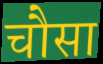
चौसा